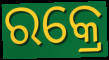
ରକ୍ରେ